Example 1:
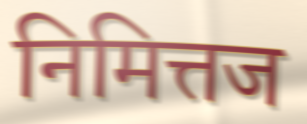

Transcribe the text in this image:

निमित्तज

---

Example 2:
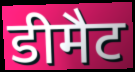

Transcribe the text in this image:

डीमैट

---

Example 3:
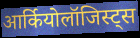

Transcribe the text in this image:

आर्कियोलॉजिस्ट्स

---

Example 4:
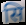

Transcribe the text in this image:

सि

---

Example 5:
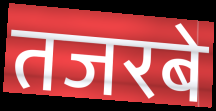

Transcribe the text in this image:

तजरबे